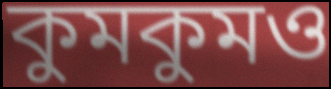
কুমকুমও